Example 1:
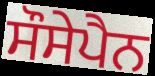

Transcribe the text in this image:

ਸੌਸੇਪੈਨ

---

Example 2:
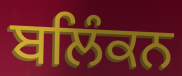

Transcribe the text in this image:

ਬਲਿੰਕਨ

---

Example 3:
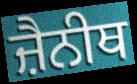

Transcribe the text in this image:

ਜ਼ੈਨੀਥ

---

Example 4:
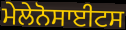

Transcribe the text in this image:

ਮੇਲੇਨੋਸਾਈਟਸ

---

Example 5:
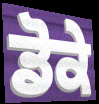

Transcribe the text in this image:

ਡੋਕੇ